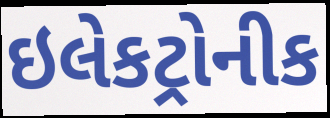
ઇલેકટ્રોનીક